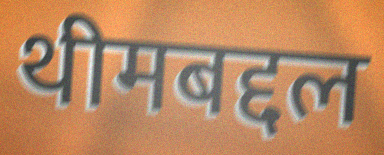
थीमबद्दल